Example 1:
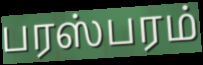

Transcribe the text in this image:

பரஸ்பரம்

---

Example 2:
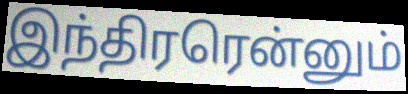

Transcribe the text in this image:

இந்திரரென்னும்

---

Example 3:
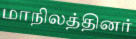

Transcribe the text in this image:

மாநிலத்தினர்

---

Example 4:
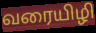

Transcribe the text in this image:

வரையிழி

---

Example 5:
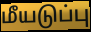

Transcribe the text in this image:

மீயடுப்பு